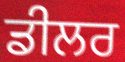
ਡੀਲਰ